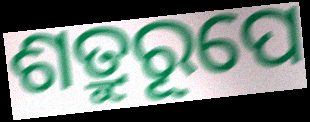
ଶତ୍ରୁରୂପେ